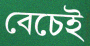
বেচেই